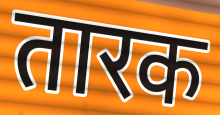
तारक